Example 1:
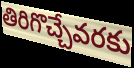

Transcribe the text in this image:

తిరిగొచ్చేవరకు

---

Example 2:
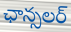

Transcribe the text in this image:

ఛాన్సలర్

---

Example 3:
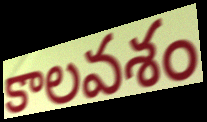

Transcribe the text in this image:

కాలవశం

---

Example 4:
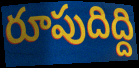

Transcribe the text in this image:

రూపుదిద్ది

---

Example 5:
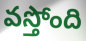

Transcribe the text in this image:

వస్తోంది